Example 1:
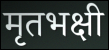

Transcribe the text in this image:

मृतभक्षी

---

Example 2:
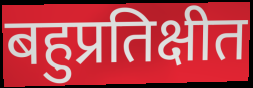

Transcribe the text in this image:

बहुप्रतिक्षीत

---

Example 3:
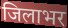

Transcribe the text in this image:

जिलाभर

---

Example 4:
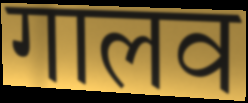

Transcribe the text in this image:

गालव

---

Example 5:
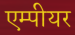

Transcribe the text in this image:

एम्पीयर